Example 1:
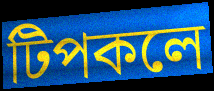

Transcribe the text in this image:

টিপকলে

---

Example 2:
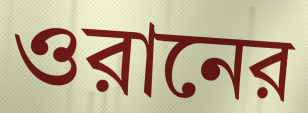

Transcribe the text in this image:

ওরানের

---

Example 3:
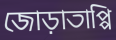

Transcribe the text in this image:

জোড়াতাপ্পি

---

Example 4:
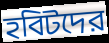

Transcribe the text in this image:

হবিটদের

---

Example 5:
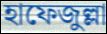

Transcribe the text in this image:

হাফেজুল্লা